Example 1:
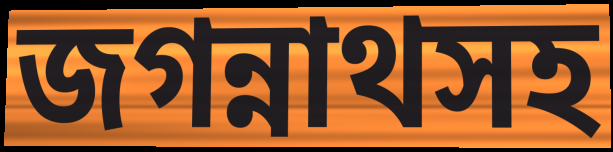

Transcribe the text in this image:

জগন্নাথসহ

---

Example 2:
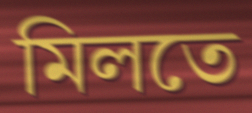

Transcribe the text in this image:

মিলতে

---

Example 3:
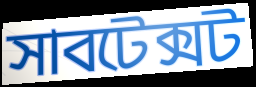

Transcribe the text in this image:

সাবটেক্সট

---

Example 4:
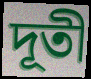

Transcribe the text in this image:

দূতী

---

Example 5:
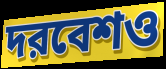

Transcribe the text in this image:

দরবেশও